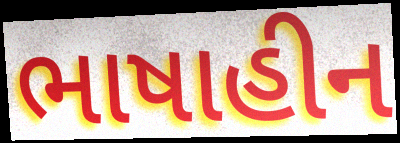
ભાષાહીન